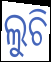
ଲୁଚି